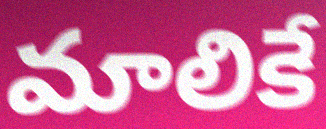
మాలికే